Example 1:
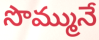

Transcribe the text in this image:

సొమ్మునే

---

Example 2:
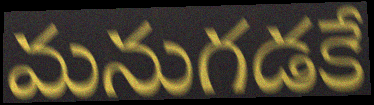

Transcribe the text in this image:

మనుగడకే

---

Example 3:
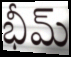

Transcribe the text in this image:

భీమ్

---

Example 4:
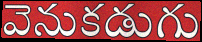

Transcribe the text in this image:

వెనుకడుగు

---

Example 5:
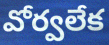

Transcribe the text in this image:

వోర్వలేక